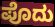
ಪೊದು